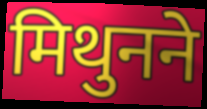
मिथुनने